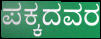
ಪಕ್ಕದವರ